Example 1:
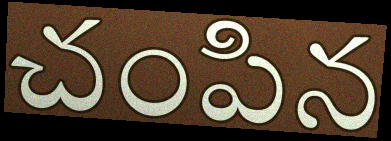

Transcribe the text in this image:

చంపిన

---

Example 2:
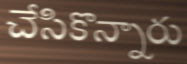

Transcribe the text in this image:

చేసికొన్నారు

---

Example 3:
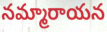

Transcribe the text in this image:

నమ్మారాయన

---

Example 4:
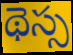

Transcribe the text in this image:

థెస్స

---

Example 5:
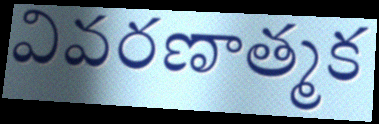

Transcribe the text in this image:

వివరణాత్మక